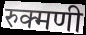
रुक्मणी